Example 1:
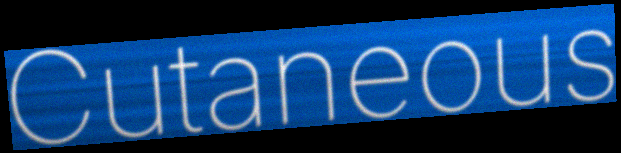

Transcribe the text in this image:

Cutaneous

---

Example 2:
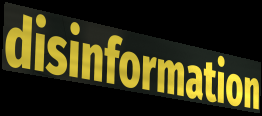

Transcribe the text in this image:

disinformation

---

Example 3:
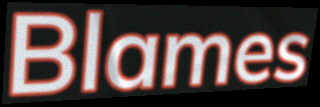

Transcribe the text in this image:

Blames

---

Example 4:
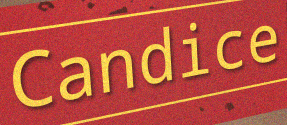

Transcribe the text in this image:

Candice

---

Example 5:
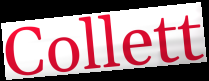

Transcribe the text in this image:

Collett